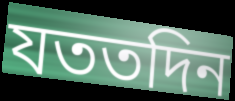
যততদিন